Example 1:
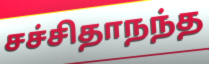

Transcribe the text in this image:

சச்சிதாநந்த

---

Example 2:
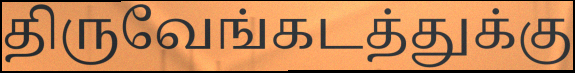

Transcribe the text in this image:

திருவேங்கடத்துக்கு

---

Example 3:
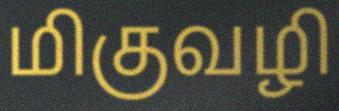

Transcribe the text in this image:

மிகுவழி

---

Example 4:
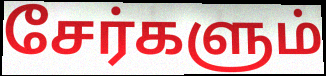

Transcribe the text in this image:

சேர்களும்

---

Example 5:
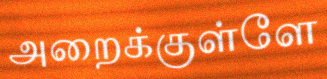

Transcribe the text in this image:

அறைக்குள்ளே